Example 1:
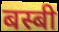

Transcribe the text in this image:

बस्बी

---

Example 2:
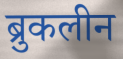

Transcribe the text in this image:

ब्रुकलीन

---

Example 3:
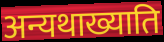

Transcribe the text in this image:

अन्यथाख्याति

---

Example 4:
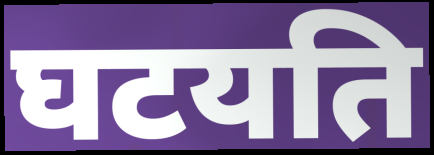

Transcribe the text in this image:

घटयति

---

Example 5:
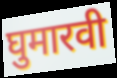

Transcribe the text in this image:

घुमारवी